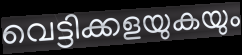
വെട്ടിക്കളയുകയും